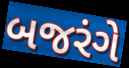
બજરંગે